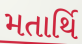
મતાર્થિ